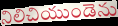
నిలిచియుండెను